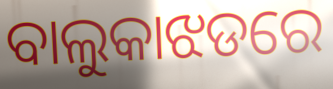
ବାଲୁକାଝଡରେ